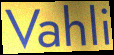
Vahli